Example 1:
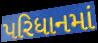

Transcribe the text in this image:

પરિધાનમાં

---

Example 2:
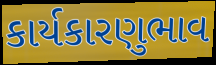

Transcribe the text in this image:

કાર્યકારણુભાવ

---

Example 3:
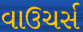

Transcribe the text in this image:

વાઉચર્સ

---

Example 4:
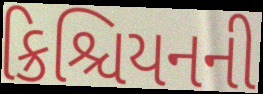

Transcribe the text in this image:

ક્રિશ્ચિયનની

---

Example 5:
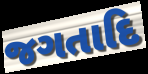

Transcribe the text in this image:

જગતાદિ